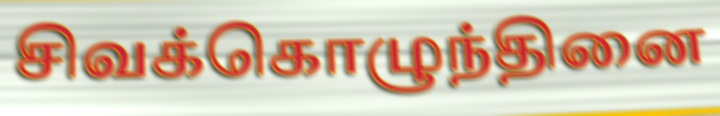
சிவக்கொழுந்தினை